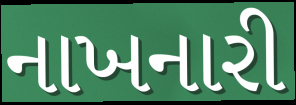
નાખનારી